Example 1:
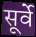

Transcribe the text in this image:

सूर्वे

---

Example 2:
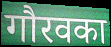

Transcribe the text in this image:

गौरवका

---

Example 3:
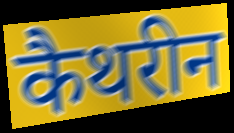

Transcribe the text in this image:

कैथरीन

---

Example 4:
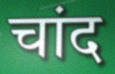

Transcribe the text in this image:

चांद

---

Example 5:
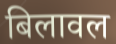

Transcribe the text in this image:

बिलावल